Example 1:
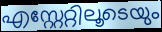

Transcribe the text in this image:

എസ്റ്റേറ്റിലൂടെയും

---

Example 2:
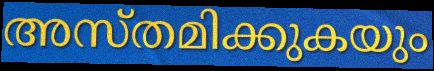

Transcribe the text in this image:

അസ്തമിക്കുകയും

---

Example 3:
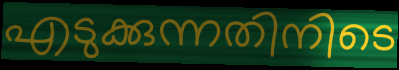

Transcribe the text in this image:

എടുക്കുന്നതിനിടെ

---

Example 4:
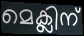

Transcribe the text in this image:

മെക്ലിന്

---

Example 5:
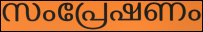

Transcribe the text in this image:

സംപ്രേഷണം